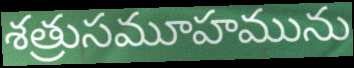
శత్రుసమూహమును